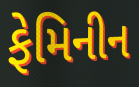
ફેમિનીન